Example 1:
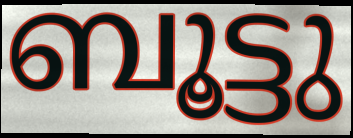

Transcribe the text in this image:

ബൂട്ടു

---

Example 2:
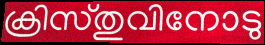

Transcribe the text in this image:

ക്രിസ്തുവിനോടു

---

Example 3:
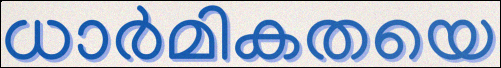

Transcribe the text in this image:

ധാർമികതയെ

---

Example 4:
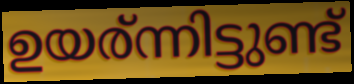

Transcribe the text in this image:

ഉയര്ന്നിട്ടുണ്ട്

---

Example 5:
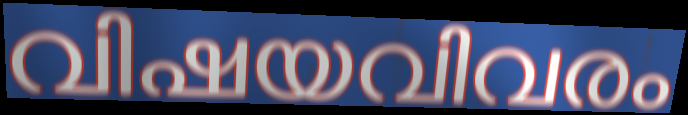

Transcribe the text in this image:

വിഷയവിവരം